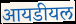
आयडीयल